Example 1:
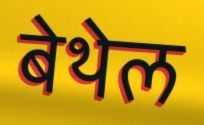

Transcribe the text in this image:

बेथेल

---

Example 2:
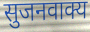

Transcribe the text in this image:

सुजनवाक्य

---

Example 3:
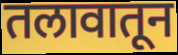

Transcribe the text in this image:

तलावातून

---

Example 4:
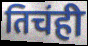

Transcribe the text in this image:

तिचंही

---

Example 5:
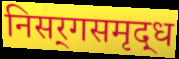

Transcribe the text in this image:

निसर्गसमृद्ध